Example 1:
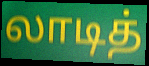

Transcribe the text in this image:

லாடித்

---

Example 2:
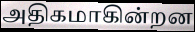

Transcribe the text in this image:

அதிகமாகின்றன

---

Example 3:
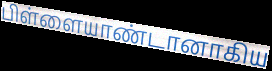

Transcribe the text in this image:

பிள்ளையாண்டானாகிய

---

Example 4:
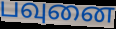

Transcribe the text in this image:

பவுனை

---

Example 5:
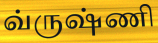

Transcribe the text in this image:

வ்ருஷ்ணி